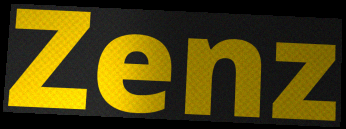
Zenz